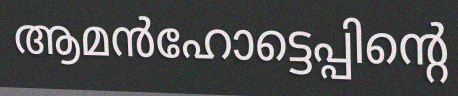
ആമൻഹോട്ടെപ്പിന്റെ